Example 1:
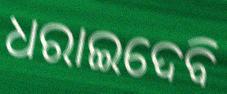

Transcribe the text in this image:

ଧରାଇଦେବି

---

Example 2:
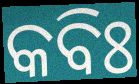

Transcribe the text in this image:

କବିଃ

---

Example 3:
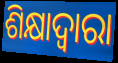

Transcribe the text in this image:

ଶିକ୍ଷାଦ୍ୱାରା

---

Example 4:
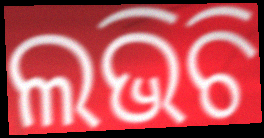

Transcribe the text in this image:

ଲଭିଚି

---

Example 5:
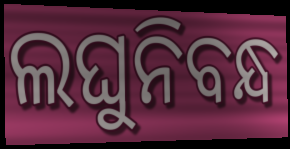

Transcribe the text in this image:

ଲଘୁନିବନ୍ଧ